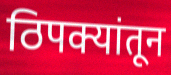
ठिपक्यांतून